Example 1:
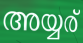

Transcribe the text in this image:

അയ്യര്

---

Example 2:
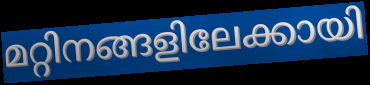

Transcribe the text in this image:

മറ്റിനങ്ങളിലേക്കായി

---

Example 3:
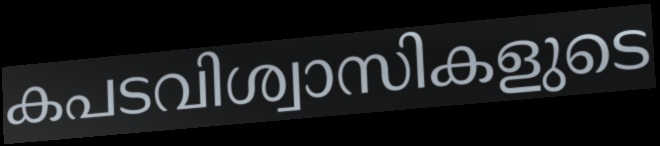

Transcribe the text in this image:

കപടവിശ്വാസികളുടെ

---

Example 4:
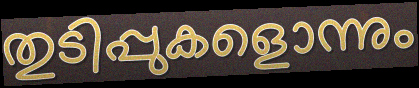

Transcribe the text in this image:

തുടിപ്പുകളൊന്നും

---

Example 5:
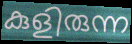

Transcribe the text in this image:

കുളിരുന്ന